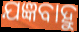
ଯଜ୍ଞବାହୁ